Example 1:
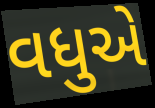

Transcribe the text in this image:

વધુએ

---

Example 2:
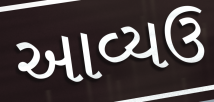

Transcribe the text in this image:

આવ્યઉ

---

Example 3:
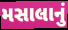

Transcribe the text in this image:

મસાલાનું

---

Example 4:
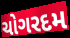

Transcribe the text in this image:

ચોગરદમ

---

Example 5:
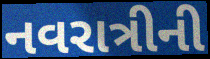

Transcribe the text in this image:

નવરાત્રીની